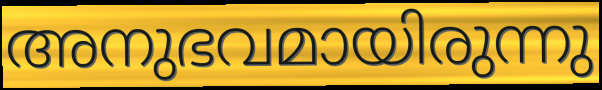
അനുഭവമായിരുന്നു